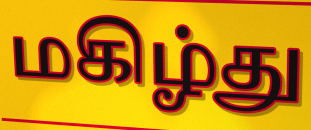
மகிழ்து